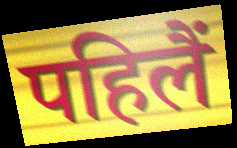
पहिलैं